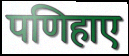
पणिहाए